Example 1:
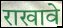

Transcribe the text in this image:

राखावे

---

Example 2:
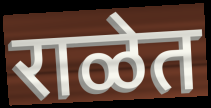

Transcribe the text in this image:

राळेत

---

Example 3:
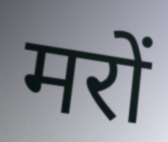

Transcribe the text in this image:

मरों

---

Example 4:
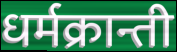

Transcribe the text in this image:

धर्मक्रान्ती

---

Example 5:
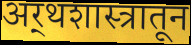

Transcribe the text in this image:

अर्थशास्त्रातून